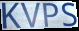
KVPS